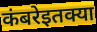
कंबरेइतक्या